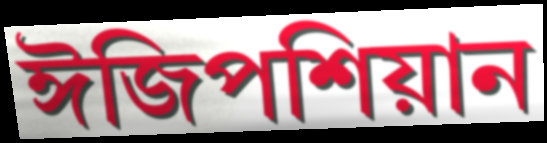
ঈজিপশিয়ান